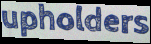
upholders